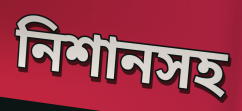
নিশানসহ